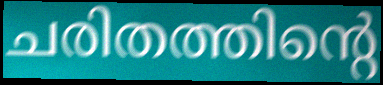
ചരിതത്തിന്റെ